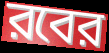
রবের